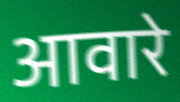
आवारे